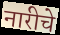
नारीचे